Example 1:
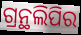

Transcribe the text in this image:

ଗ୍ରନ୍ଥଲିପିର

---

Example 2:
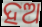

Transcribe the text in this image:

ହଅ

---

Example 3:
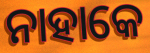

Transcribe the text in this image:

ନାହାକେ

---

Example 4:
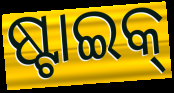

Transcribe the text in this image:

ଷ୍ଟାଇକ୍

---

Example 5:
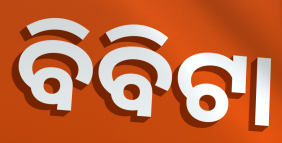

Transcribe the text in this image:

ବିବିଟା